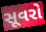
સૂવરો